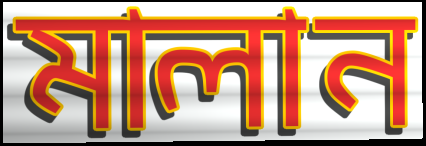
মালান